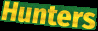
Hunters